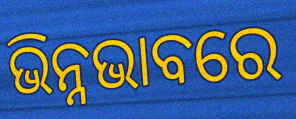
ଭିନ୍ନଭାବରେ